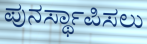
ಪುನರ್ಸ್ಥಾಪಿಸಲು